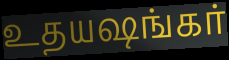
உதயஷங்கர்